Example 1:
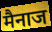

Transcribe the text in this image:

मैनाज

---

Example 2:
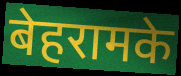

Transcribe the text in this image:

बेहरामके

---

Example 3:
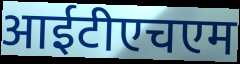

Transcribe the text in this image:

आईटीएचएम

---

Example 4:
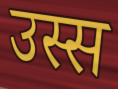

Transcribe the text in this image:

उस्स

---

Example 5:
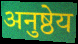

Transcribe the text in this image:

अनुष्ठेय